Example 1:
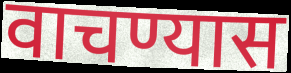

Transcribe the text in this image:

वाचण्यास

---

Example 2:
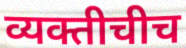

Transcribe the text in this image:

व्यक्तीचीच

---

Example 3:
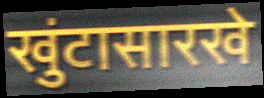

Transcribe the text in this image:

खुंटासारखे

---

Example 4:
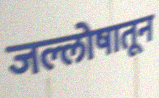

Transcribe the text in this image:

जल्लोषातून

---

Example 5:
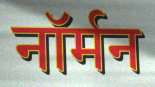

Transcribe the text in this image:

नॉर्मन